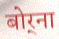
बोर्ना